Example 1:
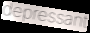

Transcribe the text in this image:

depressant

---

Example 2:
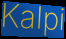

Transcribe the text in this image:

Kalpi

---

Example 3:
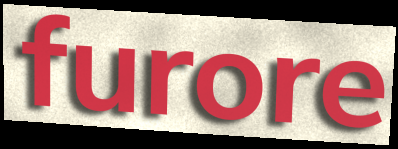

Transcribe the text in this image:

furore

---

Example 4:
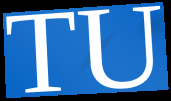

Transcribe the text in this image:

TU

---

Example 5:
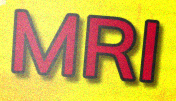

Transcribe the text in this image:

MRI